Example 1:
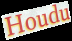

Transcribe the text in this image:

Houdu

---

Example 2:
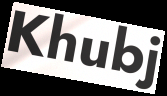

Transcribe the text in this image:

Khubj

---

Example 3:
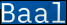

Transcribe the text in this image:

Baal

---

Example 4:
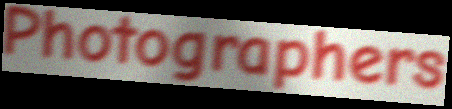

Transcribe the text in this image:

Photographers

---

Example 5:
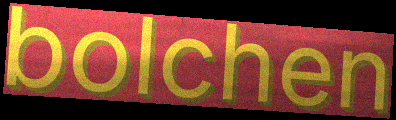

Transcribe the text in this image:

bolchen